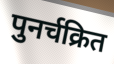
पुनर्चक्रित